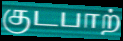
குடபாற்